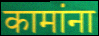
कामांना